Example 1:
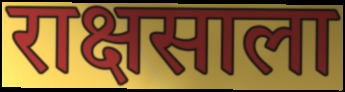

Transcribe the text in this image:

राक्षसाला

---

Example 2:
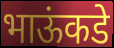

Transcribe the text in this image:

भाऊंकडे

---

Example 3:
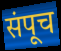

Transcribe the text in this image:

संपूच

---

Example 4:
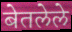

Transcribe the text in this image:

बेतलेले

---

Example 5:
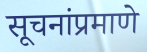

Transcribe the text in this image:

सूचनांप्रमाणे